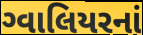
ગ્વાલિયરનાં